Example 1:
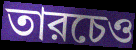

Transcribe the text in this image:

তারচেও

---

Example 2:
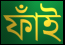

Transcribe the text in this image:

ফাঁই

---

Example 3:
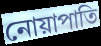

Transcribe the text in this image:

নোয়াপাতি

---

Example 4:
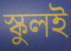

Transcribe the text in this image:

স্কুলই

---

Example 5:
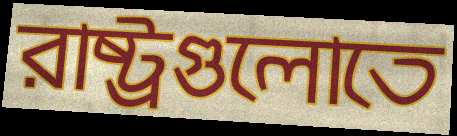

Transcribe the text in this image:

রাষ্ট্রগুলোতে